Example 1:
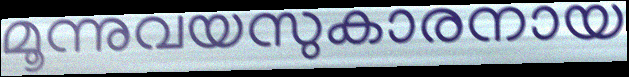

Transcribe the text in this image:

മൂന്നുവയസുകാരനായ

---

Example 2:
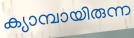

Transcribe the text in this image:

ക്യാമ്പായിരുന്ന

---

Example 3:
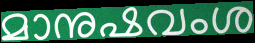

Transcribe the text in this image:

മാനുഷവംശ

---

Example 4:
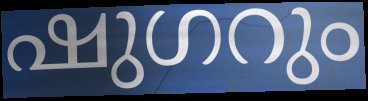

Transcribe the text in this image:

ഷുഗറും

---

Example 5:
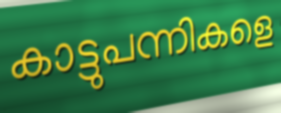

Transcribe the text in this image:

കാട്ടുപന്നികളെ